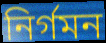
নির্গমন